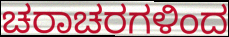
ಚರಾಚರಗಳಿಂದ